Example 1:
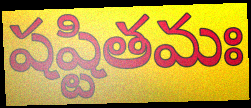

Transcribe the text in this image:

షష్టితమః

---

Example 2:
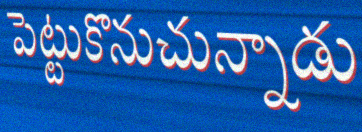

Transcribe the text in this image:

పెట్టుకొనుచున్నాడు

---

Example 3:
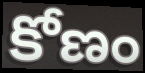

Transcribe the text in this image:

కోణం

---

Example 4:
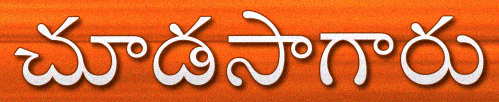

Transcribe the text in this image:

చూడసాగారు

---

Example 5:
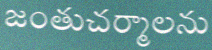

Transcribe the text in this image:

జంతుచర్మాలను